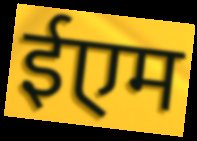
ईएम